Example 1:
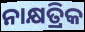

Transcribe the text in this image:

ନାକ୍ଷତ୍ରିକ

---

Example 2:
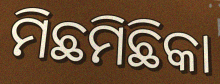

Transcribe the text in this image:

ମିଛମିଛିକା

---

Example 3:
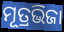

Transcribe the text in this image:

ମୂତ୍ରଭିଜା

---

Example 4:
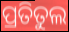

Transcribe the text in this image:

ପ୍ରତିତୁଲ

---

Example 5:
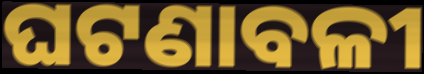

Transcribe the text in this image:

ଘଟଣାବଳୀ